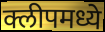
क्लीपमध्ये